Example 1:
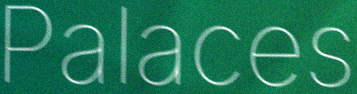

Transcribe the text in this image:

Palaces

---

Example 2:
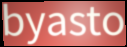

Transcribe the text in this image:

byasto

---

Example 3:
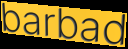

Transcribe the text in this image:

barbad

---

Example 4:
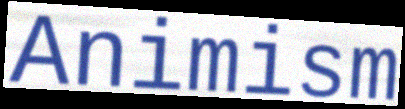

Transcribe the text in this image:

Animism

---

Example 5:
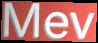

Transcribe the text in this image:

Mev